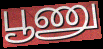
பூணு